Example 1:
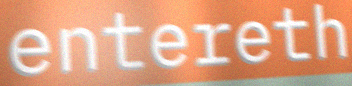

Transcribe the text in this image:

entereth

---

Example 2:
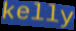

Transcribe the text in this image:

kelly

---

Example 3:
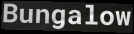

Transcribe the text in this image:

Bungalow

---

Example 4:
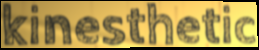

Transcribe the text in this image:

kinesthetic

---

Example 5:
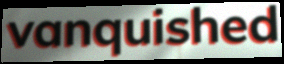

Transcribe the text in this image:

vanquished